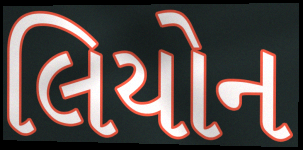
લિયોન